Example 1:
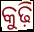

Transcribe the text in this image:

କୁଢ଼ି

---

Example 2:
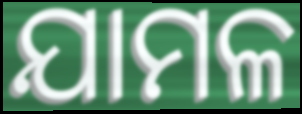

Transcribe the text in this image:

ଯାମଳ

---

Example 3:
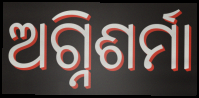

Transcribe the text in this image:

ଅଗ୍ନିଶର୍ମା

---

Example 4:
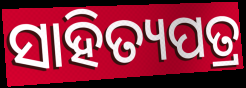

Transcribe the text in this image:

ସାହିତ୍ୟପତ୍ର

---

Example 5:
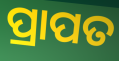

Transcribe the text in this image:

ପ୍ରାପତ